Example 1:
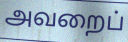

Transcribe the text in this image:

அவறைப்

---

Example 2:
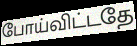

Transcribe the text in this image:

போய்விட்டதே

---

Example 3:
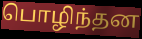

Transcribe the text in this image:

பொழிந்தன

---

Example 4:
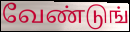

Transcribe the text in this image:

வேண்டுங்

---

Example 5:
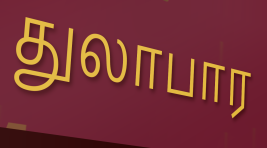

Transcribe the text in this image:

துலாபார